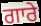
ਗਾਰੇ